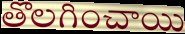
తొలగించాయి